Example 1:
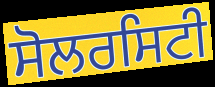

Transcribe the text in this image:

ਸੋਲਰਸਿਟੀ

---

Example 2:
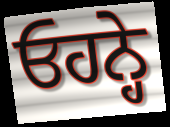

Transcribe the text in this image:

ਓਹਨ੍ਹੇ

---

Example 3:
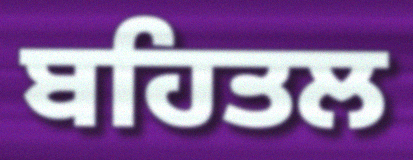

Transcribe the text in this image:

ਬਹਿਤਲ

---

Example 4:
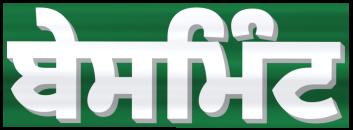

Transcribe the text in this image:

ਬੇਸਮਿੰਟ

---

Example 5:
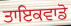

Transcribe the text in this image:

ਤਾਇਕਵਾਡੋ